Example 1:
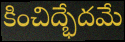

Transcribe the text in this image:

కించిద్భేదమే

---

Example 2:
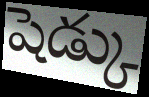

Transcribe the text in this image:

షెడ్కు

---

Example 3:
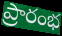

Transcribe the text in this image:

ప్రారంభ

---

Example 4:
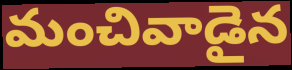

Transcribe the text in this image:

మంచివాడైన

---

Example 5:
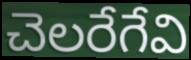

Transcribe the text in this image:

చెలరేగేవి